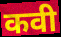
कवी